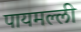
पायमल्ली